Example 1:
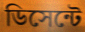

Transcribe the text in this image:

ডিসেন্টে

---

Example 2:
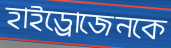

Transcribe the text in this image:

হাইড্রোজেনকে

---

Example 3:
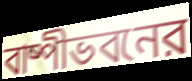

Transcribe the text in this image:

বাষ্পীভবনের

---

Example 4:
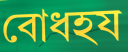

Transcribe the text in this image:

বোধহয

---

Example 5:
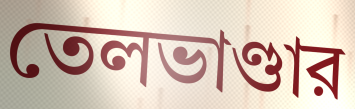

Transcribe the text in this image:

তেলভাণ্ডার